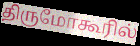
திருமோகூரில்